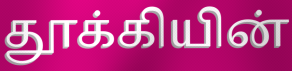
தூக்கியின்